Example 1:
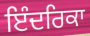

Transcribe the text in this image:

ਇੰਦਰਿਕਾ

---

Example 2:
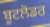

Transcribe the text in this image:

ਬੂਟਲੋਡਰ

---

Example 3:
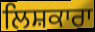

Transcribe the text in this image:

ਲਿਸ਼ਕਾਰਾ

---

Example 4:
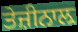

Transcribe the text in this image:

ਤੇਜ਼ੀਨਾਲ਼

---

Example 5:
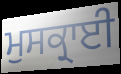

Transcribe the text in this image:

ਮੁਸਕ੍ਰਾਈ